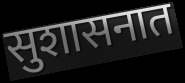
सुशासनात